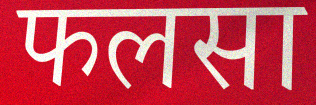
फलसा